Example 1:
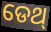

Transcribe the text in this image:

ଡେଥ୍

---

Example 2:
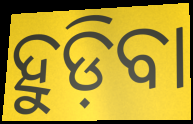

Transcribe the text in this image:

ହୁଡ଼ିବା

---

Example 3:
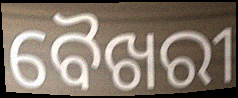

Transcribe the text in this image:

ବୈଖରୀ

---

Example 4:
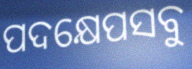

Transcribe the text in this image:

ପଦକ୍ଷେପସବୁ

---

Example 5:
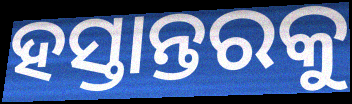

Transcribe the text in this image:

ହସ୍ତାନ୍ତରକୁ